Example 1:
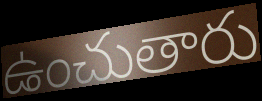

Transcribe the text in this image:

ఉంచుతారు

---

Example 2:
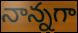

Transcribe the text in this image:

నాన్నగా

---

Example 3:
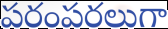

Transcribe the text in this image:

పరంపరలుగా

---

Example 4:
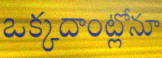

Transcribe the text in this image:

ఒక్కదాంట్లోనూ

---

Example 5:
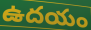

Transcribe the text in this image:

ఉదయం